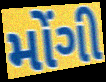
મોંગી